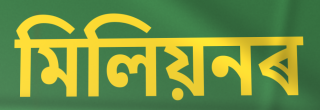
মিলিয়নৰ